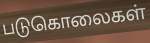
படுகொலைகள்